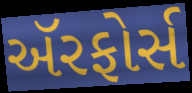
ઍરફોર્સ